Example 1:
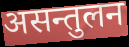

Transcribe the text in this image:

असन्तुलन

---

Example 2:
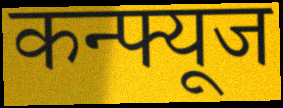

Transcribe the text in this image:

कन्फ्यूज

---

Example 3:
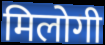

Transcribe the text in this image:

मिलोगी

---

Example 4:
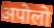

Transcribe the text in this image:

अपोलो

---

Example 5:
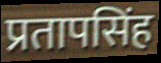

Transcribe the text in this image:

प्रतापसिंह